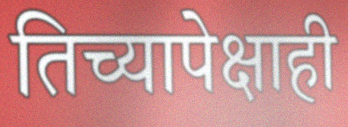
तिच्यापेक्षाही